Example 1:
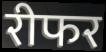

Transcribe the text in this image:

रीफर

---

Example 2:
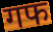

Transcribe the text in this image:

गफ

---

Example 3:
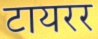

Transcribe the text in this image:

टायरर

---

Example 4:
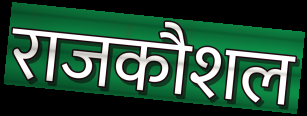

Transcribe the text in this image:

राजकौशल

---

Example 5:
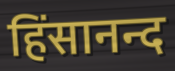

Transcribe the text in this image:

हिंसानन्द